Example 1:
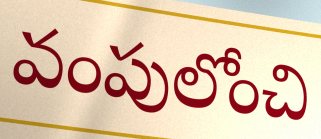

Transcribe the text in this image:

వంపులోంచి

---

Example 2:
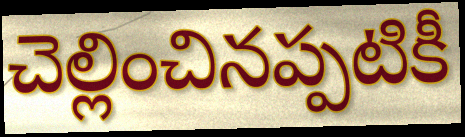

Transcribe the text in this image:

చెల్లించినప్పటికీ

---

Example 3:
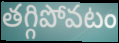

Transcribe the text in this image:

తగ్గిపోవటం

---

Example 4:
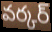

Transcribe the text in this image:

వర్కర్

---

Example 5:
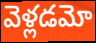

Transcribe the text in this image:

వెళ్లడమో